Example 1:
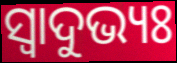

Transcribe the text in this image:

ସ୍ବାଦୁଭ୍ୟଃ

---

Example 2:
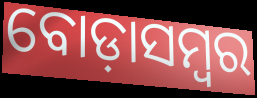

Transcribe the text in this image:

ବୋଡ଼ାସମ୍ବର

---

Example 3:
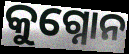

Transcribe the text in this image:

କୁଗ୍ନୋନ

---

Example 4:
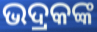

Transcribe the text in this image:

ଭଦ୍ରକଙ୍କ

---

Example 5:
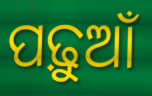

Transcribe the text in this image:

ପଢ଼ୁଆଁ